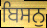
ਬਿਸਨੁ